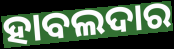
ହାବଲଦାର